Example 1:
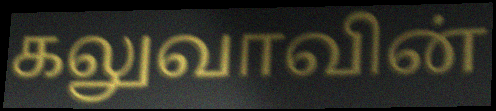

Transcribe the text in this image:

கலுவாவின்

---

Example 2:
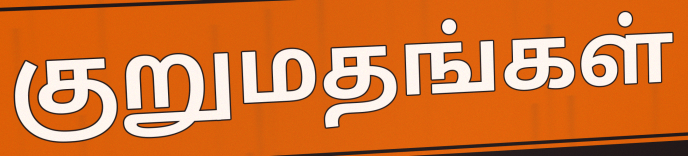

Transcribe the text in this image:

குறுமதங்கள்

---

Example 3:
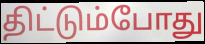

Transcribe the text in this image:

திட்டும்போது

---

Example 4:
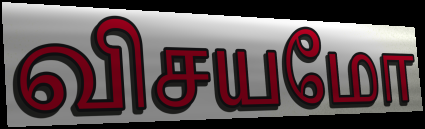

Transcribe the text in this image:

விசயமோ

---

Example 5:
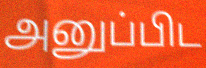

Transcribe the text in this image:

அனுப்பிட